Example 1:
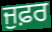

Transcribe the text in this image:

ਜੁਫ਼ਰ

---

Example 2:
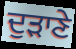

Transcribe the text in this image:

ਦੁੜਾਣੇ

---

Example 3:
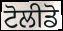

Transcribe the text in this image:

ਟੋਲੀਡੋ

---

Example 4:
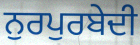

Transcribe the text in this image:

ਨੁਰਪੁਰਬੇਦੀ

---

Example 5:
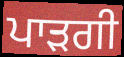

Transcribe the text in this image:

ਪਾੜਗੀ